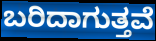
ಬರಿದಾಗುತ್ತವೆ